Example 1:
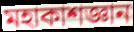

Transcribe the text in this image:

মহাকাশজ্ঞান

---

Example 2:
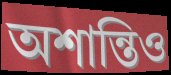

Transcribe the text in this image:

অশান্তিও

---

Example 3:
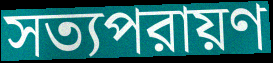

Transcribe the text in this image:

সত্যপরায়ণ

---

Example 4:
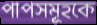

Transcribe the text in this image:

পাপসমূহকে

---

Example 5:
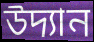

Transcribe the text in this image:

উদ্যান